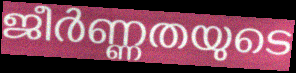
ജീർണ്ണതയുടെ